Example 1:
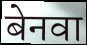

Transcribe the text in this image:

बेनवा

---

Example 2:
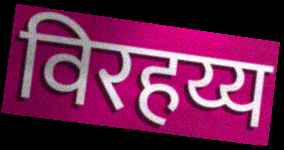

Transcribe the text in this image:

विरहय्य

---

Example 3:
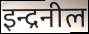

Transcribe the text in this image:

इन्द्रनील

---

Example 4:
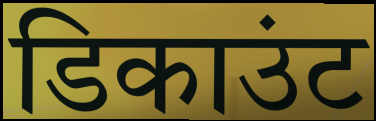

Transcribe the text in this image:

डिकाउंट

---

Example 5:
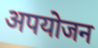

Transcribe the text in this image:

अपयोजन